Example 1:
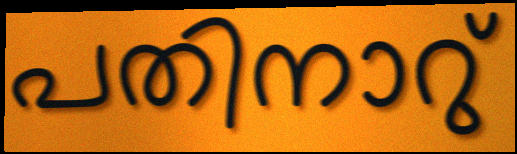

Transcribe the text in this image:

പതിനാറു്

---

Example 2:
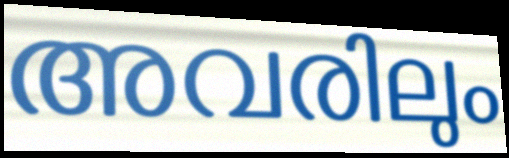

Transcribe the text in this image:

അവരിലും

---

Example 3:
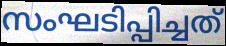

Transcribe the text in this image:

സംഘടിപ്പിച്ചത്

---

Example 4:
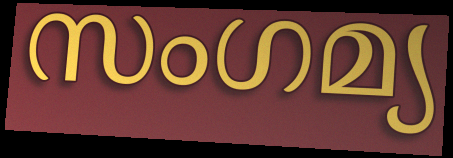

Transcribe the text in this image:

സംഗമ്യ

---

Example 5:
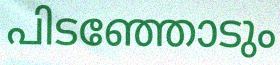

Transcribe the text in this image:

പിടഞ്ഞോടും